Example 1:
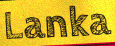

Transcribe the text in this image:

Lanka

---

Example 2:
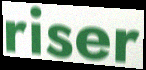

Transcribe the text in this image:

riser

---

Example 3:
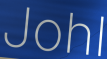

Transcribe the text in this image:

Johl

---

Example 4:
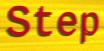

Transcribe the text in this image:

Step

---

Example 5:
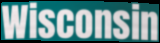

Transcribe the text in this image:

Wisconsin